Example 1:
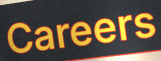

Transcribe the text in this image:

Careers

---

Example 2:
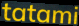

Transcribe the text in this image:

tatami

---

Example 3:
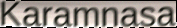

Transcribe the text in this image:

Karamnasa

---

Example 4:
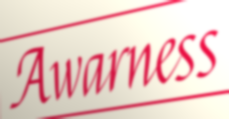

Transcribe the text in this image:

Awarness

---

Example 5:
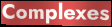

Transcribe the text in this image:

Complexes